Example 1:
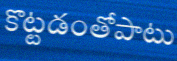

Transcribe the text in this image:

కొట్టడంతోపాటు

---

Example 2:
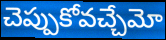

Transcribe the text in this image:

చెప్పుకోవచ్చేమో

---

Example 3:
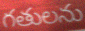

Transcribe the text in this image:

గతులను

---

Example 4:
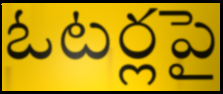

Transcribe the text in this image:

ఓటర్లపై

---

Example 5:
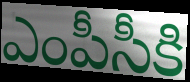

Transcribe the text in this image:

ఎంపీసీకి